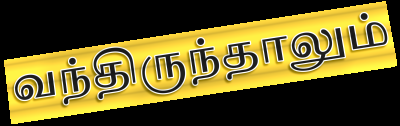
வந்திருந்தாலும்